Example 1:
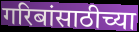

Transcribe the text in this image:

गरिबांसाठीच्या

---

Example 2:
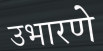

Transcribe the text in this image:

उभारणे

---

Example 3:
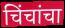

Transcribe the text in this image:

चिंचांचा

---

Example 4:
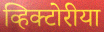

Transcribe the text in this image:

व्हिक्टोरीया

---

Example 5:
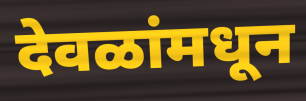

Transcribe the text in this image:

देवळांमधून